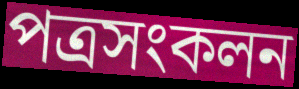
পত্রসংকলন